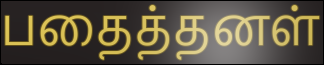
பதைத்தனள்